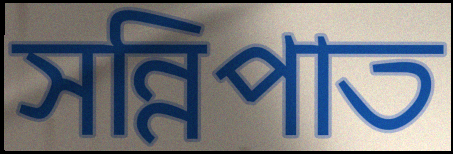
সন্নিপাত